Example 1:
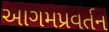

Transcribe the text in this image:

આગમપ્રવર્તન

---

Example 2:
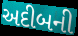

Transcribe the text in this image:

અદીબની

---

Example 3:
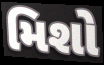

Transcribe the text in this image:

મિશો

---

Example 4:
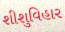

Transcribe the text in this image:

શીશુવિહાર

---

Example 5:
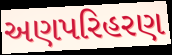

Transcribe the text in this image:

અણપરિહરણ